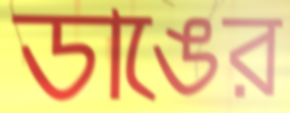
ডাঙের